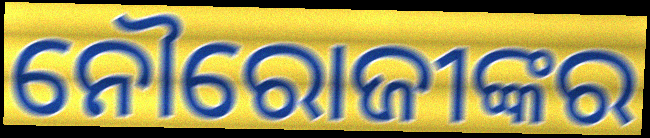
ନୌରୋଜୀଙ୍କର